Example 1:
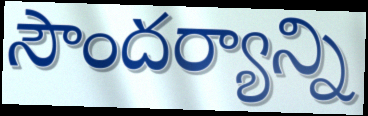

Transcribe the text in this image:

సౌందర్యాన్ని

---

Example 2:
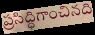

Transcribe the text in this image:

ప్రసిద్ధిగాంచినది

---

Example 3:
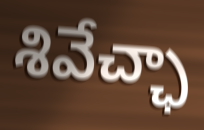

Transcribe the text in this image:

శివేచ్ఛా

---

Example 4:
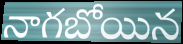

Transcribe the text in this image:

నాగబోయిన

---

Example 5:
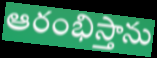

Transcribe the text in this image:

ఆరంభిస్తాను